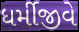
ધર્મીજીવે